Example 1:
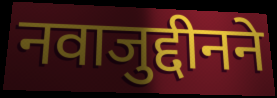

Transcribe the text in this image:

नवाजुद्दीनने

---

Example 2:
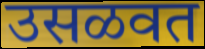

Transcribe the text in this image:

उसळवत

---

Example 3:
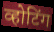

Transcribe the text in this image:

व्होटिंग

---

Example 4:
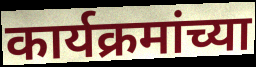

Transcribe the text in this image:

कार्यक्रमांच्या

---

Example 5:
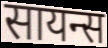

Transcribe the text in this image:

सायन्स